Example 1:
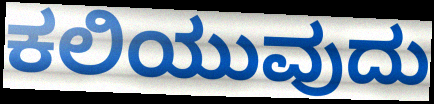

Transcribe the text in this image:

ಕಲಿಯುವುದು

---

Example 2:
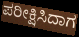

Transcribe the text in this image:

ಪರೀಕ್ಷಿಸಿದಾಗ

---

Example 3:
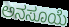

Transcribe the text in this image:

ಅನಸೂಯೆ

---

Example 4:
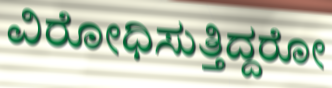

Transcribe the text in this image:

ವಿರೋಧಿಸುತ್ತಿದ್ದರೋ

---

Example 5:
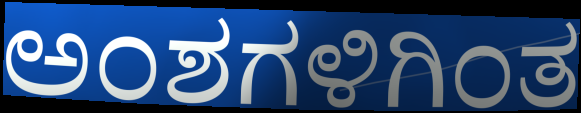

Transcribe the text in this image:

ಅಂಶಗಳಿಗಿಂತ